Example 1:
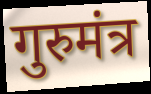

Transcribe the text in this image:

गुरुमंत्र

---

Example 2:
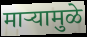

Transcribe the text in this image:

माऱ्यामुळे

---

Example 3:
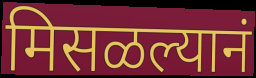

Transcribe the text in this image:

मिसळल्यानं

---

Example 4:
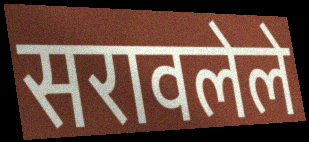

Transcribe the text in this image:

सरावलेले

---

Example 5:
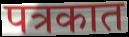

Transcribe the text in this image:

पत्रकात